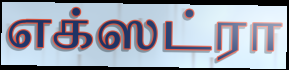
எக்ஸட்ரா